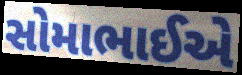
સોમાભાઈએ